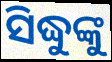
ସିଦ୍ଧୁଙ୍କୁ